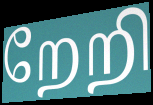
றேறி